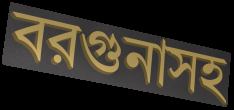
বরগুনাসহ